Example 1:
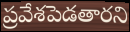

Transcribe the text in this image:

ప్రవేశపెడతారని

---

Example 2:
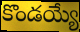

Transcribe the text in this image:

కొండయ్యే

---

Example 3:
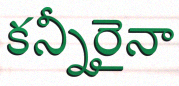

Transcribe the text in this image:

కన్నీరైనా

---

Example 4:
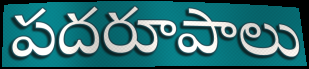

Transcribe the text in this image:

పదరూపాలు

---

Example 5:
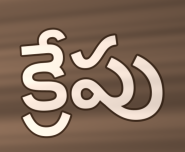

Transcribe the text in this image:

క్రేపు